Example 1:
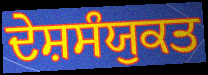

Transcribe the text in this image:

ਦੇਸ਼ਸੰਯੁਕਤ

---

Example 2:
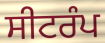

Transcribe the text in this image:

ਸੀਟਰੰਪ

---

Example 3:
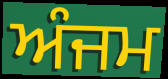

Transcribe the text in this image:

ਅੰਜਮ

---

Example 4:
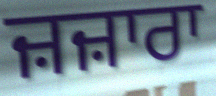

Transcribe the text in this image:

ਜ਼ਜ਼ਾਰਾ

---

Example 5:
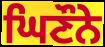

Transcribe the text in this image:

ਘਿਣੌਨੇ